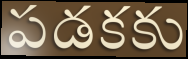
పడకకు